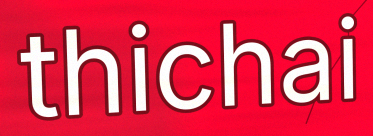
thichai